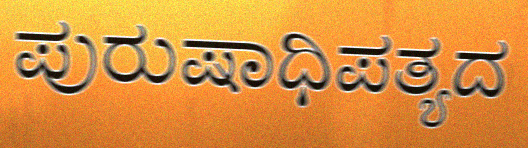
ಪುರುಷಾಧಿಪತ್ಯದ